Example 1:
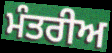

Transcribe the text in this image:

ਮੰਤਰੀਅ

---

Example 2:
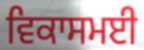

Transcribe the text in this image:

ਵਿਕਾਸਮਈ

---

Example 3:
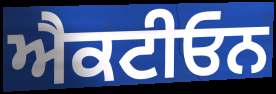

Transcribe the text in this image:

ਐਕਟੀਓਨ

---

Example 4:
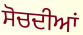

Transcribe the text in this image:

ਸੋਚਦੀਆਂ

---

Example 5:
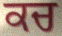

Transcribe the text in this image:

ਕਚ